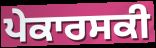
ਪੇਕਾਰਸਕੀ